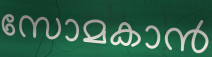
സോമകാൻ